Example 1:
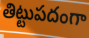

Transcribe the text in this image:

తిట్టుపదంగా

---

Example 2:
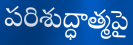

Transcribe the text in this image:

పరిశుద్ధాత్మపై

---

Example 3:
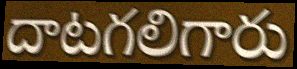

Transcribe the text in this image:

దాటగలిగారు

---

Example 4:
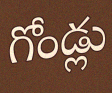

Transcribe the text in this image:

గోండ్లు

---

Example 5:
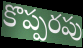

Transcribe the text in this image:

కొప్పరపు